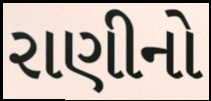
રાણીનો